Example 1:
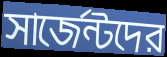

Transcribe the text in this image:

সার্জেন্টদের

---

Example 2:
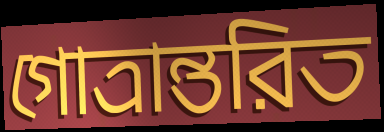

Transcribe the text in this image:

গোত্রান্তরিত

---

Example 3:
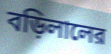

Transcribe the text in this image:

বড়িলালের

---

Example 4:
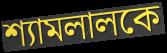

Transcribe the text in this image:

শ্যামলালকে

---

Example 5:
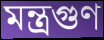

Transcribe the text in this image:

মন্ত্রগুণ